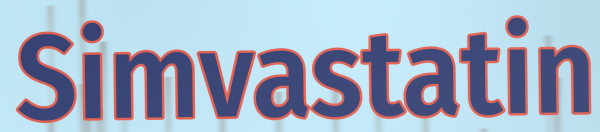
Simvastatin